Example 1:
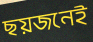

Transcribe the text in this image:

ছয়জনেই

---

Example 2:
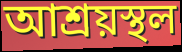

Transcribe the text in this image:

আশ্ৰয়স্থল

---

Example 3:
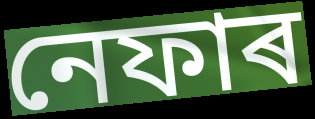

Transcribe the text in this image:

নেফাৰ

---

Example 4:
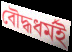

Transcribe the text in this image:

বৌদ্ধধৰ্মই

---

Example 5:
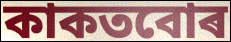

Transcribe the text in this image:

কাকতবোৰ